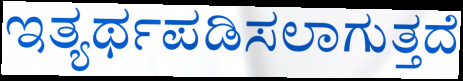
ಇತ್ಯರ್ಥಪಡಿಸಲಾಗುತ್ತದೆ